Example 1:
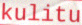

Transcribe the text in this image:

kulitu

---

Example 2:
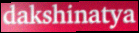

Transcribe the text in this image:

dakshinatya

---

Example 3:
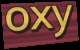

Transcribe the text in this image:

oxy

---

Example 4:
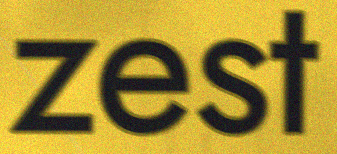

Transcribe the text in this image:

zest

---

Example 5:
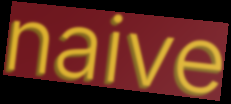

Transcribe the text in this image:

naive